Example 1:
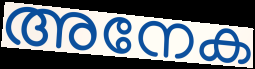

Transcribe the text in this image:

അനേക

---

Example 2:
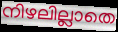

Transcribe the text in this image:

നിഴലില്ലാതെ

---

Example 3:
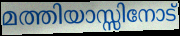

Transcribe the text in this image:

മത്തിയാസ്സിനോട്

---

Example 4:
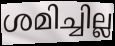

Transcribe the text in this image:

ശമിച്ചില്ല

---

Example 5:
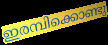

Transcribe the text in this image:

ഇരമ്പിക്കൊണ്ടു